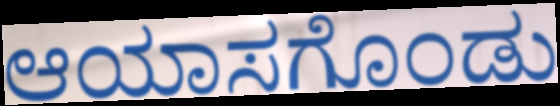
ಆಯಾಸಗೊಂಡು